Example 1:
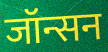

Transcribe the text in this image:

जॉन्सन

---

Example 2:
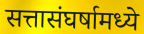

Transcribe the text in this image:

सत्तासंघर्षामध्ये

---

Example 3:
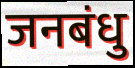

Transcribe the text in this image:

जनबंधु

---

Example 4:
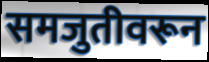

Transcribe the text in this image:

समजुतीवरून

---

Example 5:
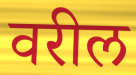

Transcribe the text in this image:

वरील